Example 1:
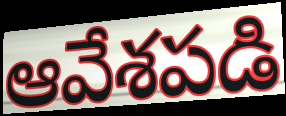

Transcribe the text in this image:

ఆవేశపడి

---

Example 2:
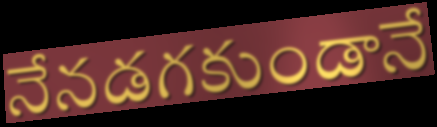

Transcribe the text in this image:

నేనడగకుండానే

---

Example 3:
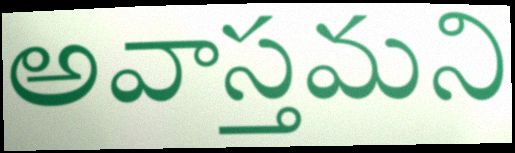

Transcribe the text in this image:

అవాస్తమని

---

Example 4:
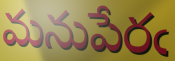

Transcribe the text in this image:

మనుపేరఁ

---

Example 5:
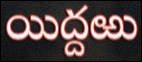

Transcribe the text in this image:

యిద్దఱు